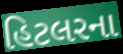
હિટલરના